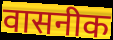
वासनीक